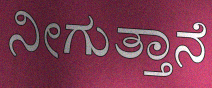
ನೀಗುತ್ತಾನೆ